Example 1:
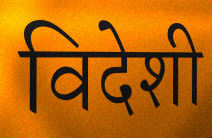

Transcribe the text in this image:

विदेशी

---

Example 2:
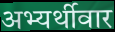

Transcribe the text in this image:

अभ्यर्थीवार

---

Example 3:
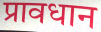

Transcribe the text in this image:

प्रावधान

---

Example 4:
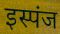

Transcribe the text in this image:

इस्पंज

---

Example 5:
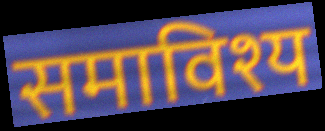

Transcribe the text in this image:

समाविश्य